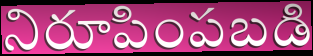
నిరూపింపబడి